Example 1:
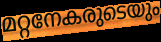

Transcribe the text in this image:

മറ്റനേകരുടെയും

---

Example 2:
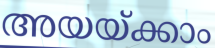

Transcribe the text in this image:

അയയ്ക്കാം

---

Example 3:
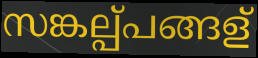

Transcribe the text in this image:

സങ്കല്പ്പങ്ങള്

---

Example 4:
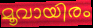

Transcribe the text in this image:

മൂവായിരം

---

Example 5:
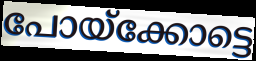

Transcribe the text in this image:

പോയ്ക്കോട്ടെ